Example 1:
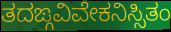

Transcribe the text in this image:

ತದಙ್ಗವಿವೇಕನಿಸ್ಸಿತಂ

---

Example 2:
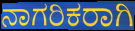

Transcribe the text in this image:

ನಾಗರಿಕರಾಗಿ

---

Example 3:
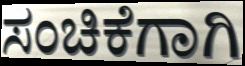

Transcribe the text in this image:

ಸಂಚಿಕೆಗಾಗಿ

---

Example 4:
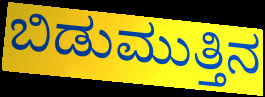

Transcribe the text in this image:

ಬಿಡುಮುತ್ತಿನ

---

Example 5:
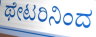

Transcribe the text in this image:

ಥೇಟರಿನಿಂದ